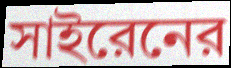
সাইরেনের